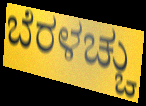
ಬೆರಳಚ್ಚು